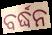
ବର୍ଦ୍ଧନ